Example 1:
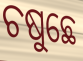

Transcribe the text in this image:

ଚଷୁଛେ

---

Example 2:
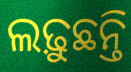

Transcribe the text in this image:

ଲଢ଼ୁଛନ୍ତି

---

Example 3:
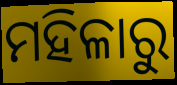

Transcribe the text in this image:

ମହିଳାରୁ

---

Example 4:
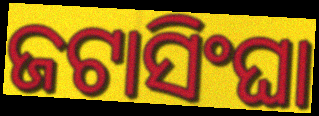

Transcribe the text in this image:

ଜଟାସିଂଘା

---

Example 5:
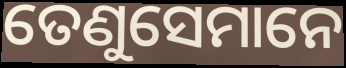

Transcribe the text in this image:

ତେଣୁସେମାନେ